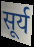
सूर्य